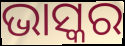
ଭାସ୍କର